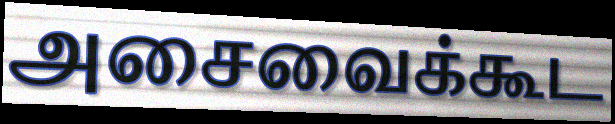
அசைவைக்கூட